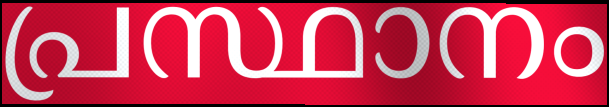
പ്രസ്ഥാനം